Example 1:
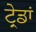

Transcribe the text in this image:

ਟ੍ਰੇਡਾਂ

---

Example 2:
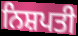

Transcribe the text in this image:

ਨਿਸ਼ਪਤੀ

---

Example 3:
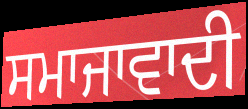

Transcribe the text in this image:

ਸਮਾਜਾਵਾਦੀ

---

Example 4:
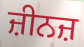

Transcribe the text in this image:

ਜ਼ੀਨਜ਼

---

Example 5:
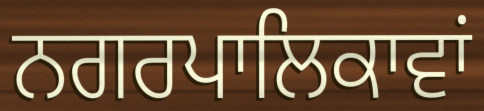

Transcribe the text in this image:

ਨਗਰਪਾਲਿਕਾਵਾਂ